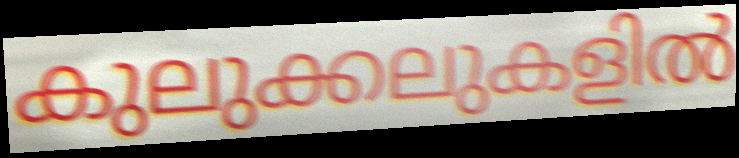
കുലുക്കലുകളിൽ